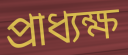
প্রাধ্যক্ষ